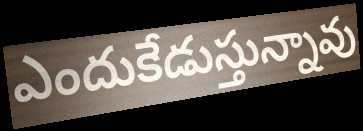
ఎందుకేడుస్తున్నావు